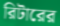
রিটারের